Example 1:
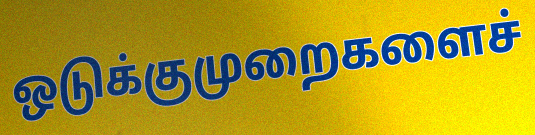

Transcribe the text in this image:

ஒடுக்குமுறைகளைச்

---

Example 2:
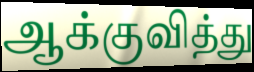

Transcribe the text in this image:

ஆக்குவித்து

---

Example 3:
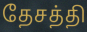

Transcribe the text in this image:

தேசத்தி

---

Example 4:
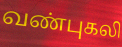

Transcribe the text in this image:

வண்புகலி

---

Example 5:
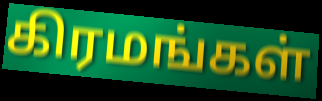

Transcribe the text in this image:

கிரமங்கள்